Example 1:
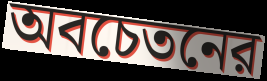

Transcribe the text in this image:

অবচেতনের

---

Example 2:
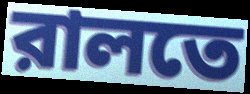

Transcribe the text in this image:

রালতে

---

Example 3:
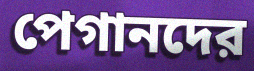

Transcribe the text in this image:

পেগানদের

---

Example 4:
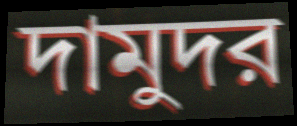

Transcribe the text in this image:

দামুদর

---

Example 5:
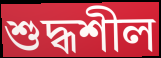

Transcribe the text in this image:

শুদ্ধশীল